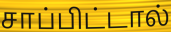
சாப்பிட்டால்